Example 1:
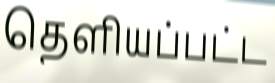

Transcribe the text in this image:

தெளியப்பட்ட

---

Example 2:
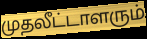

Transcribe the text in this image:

முதலீட்டாளரும்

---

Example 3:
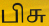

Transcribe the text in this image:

பிசு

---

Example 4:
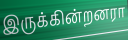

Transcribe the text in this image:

இருக்கின்றனரா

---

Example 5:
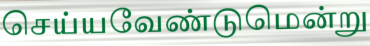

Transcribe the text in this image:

செய்யவேண்டுமென்று